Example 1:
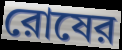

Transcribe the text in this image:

রোষের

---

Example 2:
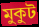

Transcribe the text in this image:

মুকুট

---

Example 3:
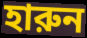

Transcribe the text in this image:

হারুন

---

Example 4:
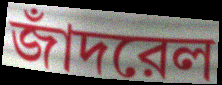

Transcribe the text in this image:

জাঁদরেল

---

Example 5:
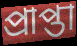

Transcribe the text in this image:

প্রাপ্তা